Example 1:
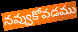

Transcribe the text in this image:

నవ్వుకోవడము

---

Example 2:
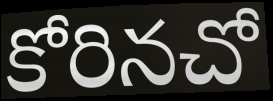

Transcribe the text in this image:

కోరినచో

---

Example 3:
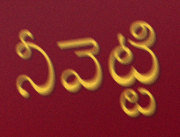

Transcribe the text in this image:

నీవెట్టి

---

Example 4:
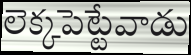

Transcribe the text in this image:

లెక్కపెట్టేవాడు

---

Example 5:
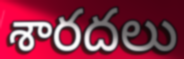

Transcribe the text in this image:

శారదలు